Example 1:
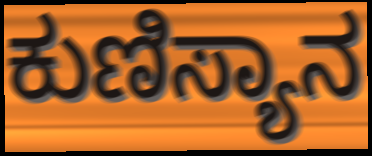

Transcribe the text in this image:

ಕುಣಿಸ್ಯಾನ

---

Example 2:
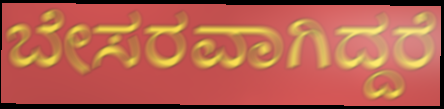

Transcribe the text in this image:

ಬೇಸರವಾಗಿದ್ದರೆ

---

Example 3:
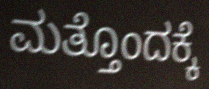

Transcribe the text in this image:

ಮತ್ತೊಂದಕ್ಕೆ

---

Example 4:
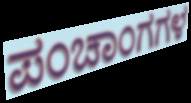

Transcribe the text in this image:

ಪಂಚಾಂಗಗಳ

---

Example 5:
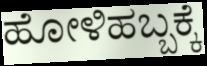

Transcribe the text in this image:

ಹೋಳಿಹಬ್ಬಕ್ಕೆ